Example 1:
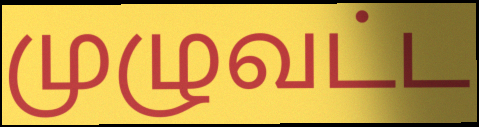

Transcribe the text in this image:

முழுவட்ட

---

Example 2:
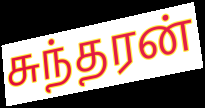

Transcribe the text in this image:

சுந்தரன்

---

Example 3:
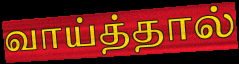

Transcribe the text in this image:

வாய்த்தால்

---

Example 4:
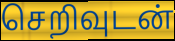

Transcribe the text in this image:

செறிவுடன்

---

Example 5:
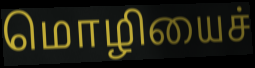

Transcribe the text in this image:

மொழியைச்